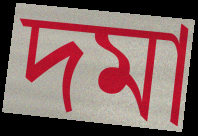
দমা